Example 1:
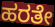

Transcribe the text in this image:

ಹರತೇ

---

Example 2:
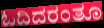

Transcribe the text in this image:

ಓದಿದರಂತೂ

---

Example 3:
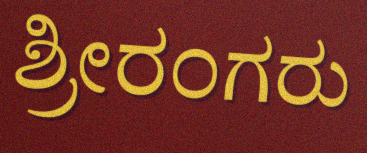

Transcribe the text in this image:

ಶ್ರೀರಂಗರು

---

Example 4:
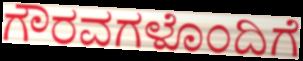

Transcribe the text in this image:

ಗೌರವಗಳೊಂದಿಗೆ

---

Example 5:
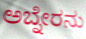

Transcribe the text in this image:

ಅಬ್ನೇರನು